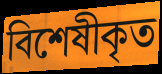
বিশেষীকৃত